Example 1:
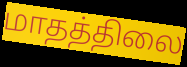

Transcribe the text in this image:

மாதத்திலை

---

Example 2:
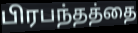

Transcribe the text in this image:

பிரபந்தத்தை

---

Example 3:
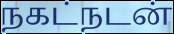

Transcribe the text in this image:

நகட்நடன்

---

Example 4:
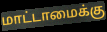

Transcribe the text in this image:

மாட்டாமைக்கு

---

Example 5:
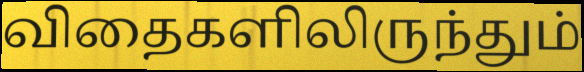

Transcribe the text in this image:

விதைகளிலிருந்தும்